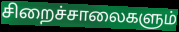
சிறைச்சாலைகளும்